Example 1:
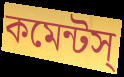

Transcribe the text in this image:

কমেন্টস্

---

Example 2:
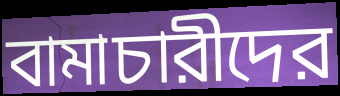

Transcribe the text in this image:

বামাচারীদের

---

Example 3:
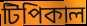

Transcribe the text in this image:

টিপিকাল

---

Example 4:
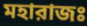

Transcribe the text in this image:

মহারাজঃ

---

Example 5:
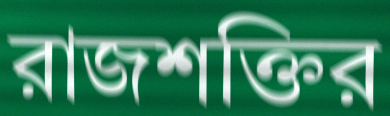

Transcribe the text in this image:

রাজশক্তির